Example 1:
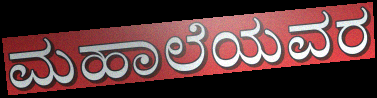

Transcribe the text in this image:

ಮಹಾಲೆಯವರ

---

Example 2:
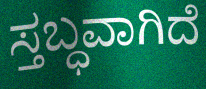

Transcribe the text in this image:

ಸ್ತಬ್ಧವಾಗಿದೆ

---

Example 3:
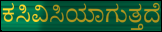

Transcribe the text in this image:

ಕಸಿವಿಸಿಯಾಗುತ್ತದೆ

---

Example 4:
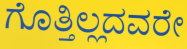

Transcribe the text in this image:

ಗೊತ್ತಿಲ್ಲದವರೇ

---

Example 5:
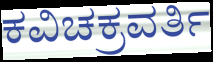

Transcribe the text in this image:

ಕವಿಚಕ್ರವರ್ತಿ